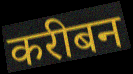
करीबन